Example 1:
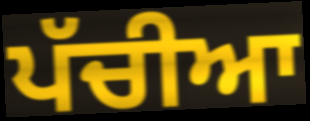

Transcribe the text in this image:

ਪੱਚੀਆ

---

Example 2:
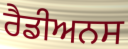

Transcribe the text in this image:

ਰੈਡੀਅਨਸ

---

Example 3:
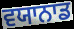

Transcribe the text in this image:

ਵਯਾਨਾਡ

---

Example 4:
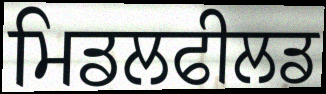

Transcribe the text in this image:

ਮਿਡਲਫੀਲਡ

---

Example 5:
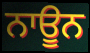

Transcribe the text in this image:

ਨਾਊਨ